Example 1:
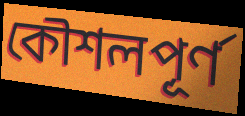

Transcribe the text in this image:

কৌশলপূৰ্ণ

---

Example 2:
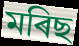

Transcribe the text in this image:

মৰিছ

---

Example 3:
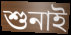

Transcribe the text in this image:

শুনাই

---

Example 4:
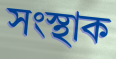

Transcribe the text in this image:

সংস্থাক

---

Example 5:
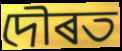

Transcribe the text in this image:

দৌৰত